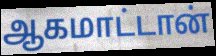
ஆகமாட்டான்